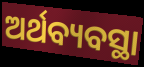
ଅର୍ଥବ୍ୟବସ୍ଥା